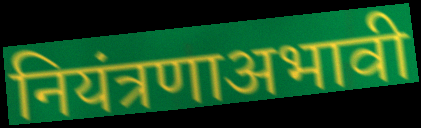
नियंत्रणाअभावी